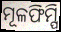
ମୂଳଫିମ୍ପି